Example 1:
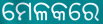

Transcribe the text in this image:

ମେଳକରେ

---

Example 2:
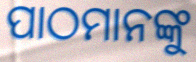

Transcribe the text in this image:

ପାଠମାନଙ୍କୁ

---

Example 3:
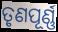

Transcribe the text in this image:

ତୃଣପୂର୍ଣ୍ଣ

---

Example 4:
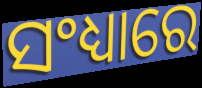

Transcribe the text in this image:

ସଂଧ୍ୟାରେ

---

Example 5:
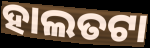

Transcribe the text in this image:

ହାଲତଟା